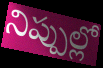
నిప్పుల్లో